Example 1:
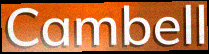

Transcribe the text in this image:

Cambell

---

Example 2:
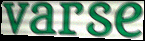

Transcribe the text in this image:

varse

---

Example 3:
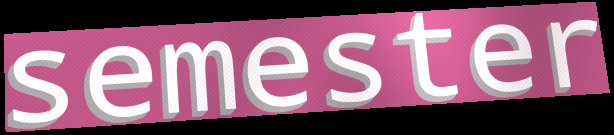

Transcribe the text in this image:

semester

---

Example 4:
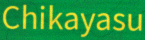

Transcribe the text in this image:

Chikayasu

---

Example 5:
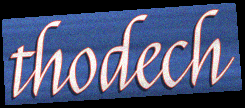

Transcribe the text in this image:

thodech